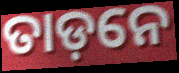
ତାଡ଼ନେ